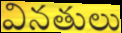
వినతులు